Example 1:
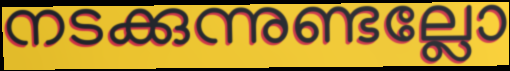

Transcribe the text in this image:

നടക്കുന്നുണ്ടല്ലോ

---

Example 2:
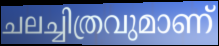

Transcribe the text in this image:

ചലച്ചിത്രവുമാണ്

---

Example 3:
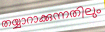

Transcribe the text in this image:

തയ്യാറാക്കുന്നതിലും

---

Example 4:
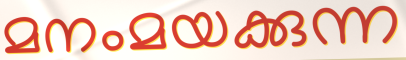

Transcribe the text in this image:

മനംമയക്കുന്ന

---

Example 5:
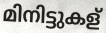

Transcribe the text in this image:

മിനിട്ടുകള്